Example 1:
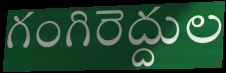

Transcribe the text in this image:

గంగిరెద్దుల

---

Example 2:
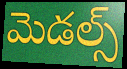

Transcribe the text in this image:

మెడల్స్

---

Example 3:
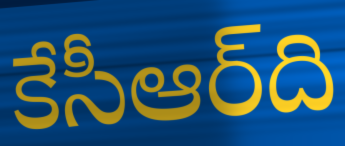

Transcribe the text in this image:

కేసీఆర్‌ది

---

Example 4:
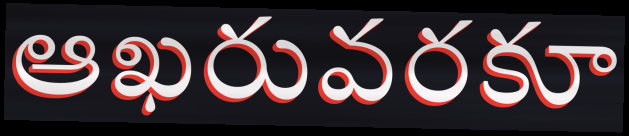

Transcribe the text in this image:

ఆఖరువరకూ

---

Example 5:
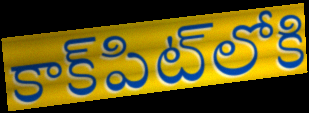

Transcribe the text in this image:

కాక్‌పిట్‌లోకి